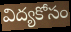
విద్యకోసం